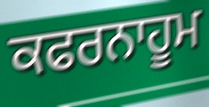
ਕਫਰਨਾਹੂਮ